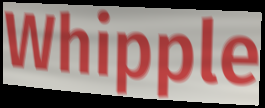
Whipple